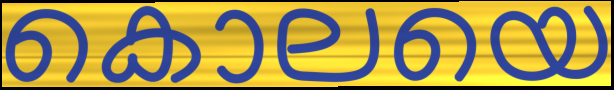
കൊലയെ